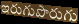
ఇరుగుపొరుగు